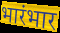
भारंभार